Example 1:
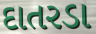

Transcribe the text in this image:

દાતરડા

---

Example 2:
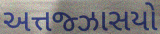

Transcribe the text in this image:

અત્તજ્ઝાસયો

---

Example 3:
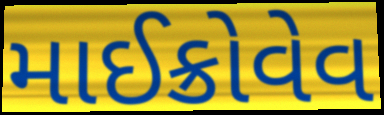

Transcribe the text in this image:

માઈક્રોવેવ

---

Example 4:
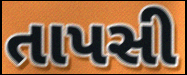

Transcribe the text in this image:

તાપસી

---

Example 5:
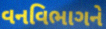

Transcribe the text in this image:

વનવિભાગને